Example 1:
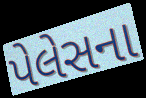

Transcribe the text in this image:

પેલેસના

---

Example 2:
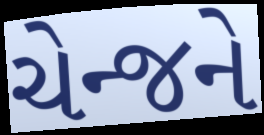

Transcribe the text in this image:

ચેન્જને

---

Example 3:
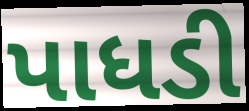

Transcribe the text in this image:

પાધડી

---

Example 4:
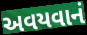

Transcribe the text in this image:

અવયવાનં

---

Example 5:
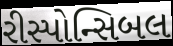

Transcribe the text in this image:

રીસ્પોન્સિબલ